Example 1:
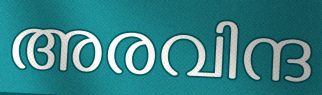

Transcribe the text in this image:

അരവിന്ദ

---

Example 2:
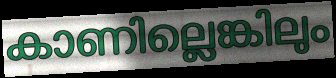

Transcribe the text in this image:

കാണില്ലെങ്കിലും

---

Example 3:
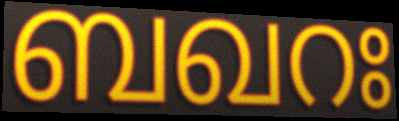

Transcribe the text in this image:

ബഖറഃ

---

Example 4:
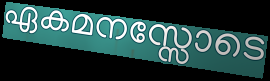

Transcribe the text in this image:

ഏകമനസ്സോടെ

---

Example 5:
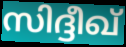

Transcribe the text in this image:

സിദ്ദീഖ്